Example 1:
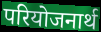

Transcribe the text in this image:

परियोजनार्थ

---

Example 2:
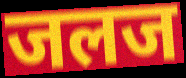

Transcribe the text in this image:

जलज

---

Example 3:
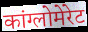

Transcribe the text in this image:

कांग्लोमेरेट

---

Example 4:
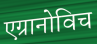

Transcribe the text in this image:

एग्रानोविच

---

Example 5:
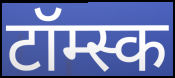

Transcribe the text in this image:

टॉम्स्क